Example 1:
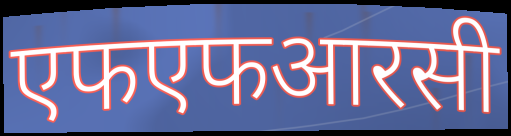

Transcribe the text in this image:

एफएफआरसी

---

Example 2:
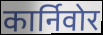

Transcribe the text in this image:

कार्निवोर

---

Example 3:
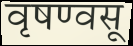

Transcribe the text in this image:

वृषण्वसू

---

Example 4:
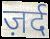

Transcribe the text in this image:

ज़र्द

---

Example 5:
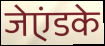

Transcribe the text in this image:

जेएंडके